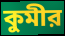
কুমীর